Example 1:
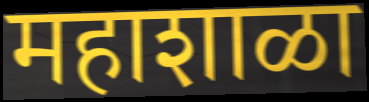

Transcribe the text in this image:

महाशाळा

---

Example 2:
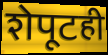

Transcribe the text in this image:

शेपूटही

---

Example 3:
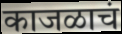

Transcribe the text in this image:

काजळाचं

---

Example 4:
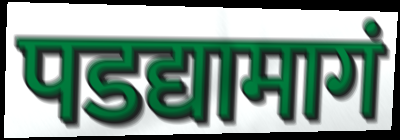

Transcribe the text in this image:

पडद्यामागं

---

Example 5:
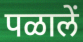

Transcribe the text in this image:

पळालें